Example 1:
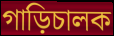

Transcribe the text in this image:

গাড়িচালক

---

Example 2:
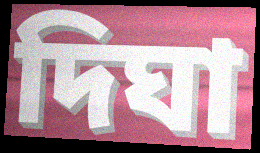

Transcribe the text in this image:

দিঘা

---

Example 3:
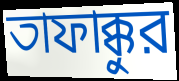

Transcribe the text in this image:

তাফাক্কুর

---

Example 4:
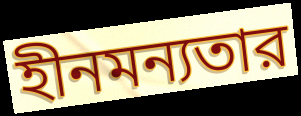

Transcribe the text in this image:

হীনমন্যতার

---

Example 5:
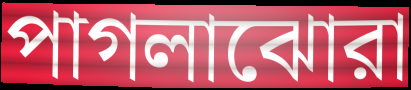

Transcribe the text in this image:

পাগলাঝোরা